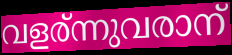
വളര്ന്നുവരാന്